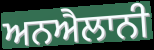
ਅਨਐਲਾਨੀ